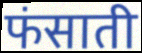
फंसाती